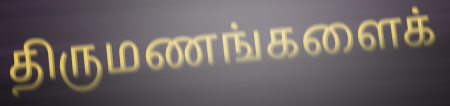
திருமணங்களைக்